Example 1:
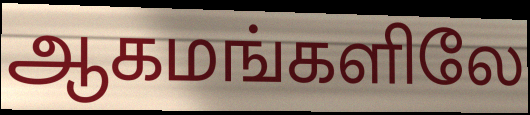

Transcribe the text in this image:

ஆகமங்களிலே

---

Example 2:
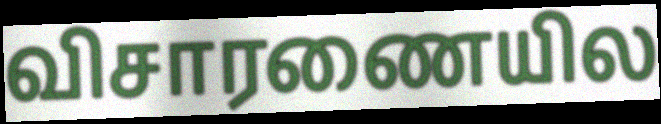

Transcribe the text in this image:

விசாரணையில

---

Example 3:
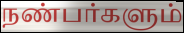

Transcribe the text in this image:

நண்பர்களும்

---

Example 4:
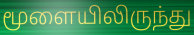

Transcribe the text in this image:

மூளையிலிருந்து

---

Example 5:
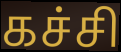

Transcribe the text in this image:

கச்சி